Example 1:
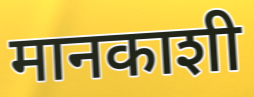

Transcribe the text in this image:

मानकाशी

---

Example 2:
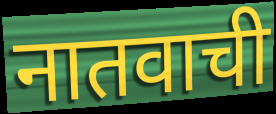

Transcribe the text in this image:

नातवाची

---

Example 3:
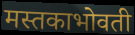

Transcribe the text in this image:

मस्तकाभोवती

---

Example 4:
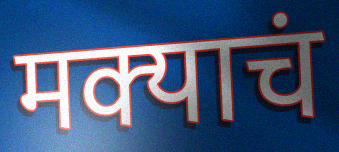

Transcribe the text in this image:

मक्याचं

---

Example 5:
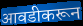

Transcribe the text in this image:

आवडीकरून